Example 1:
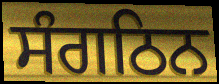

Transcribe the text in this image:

ਸੰਗਠਿਨ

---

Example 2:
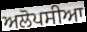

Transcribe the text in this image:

ਅਲੋਪਸੀਆ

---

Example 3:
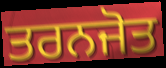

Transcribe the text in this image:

ਤਰਨਜੋਤ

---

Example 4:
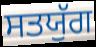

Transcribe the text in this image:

ਸਤਯੁੱਗ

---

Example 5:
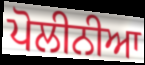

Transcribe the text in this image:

ਪੋਲੀਨੀਆ